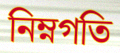
নিম্নগতি